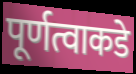
पूर्णत्वाकडे